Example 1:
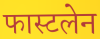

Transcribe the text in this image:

फास्टलेन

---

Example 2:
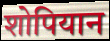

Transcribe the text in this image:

शोपियान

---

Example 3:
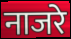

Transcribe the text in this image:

नाजरे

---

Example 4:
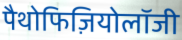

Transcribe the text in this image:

पैथोफिज़ियोलॉजी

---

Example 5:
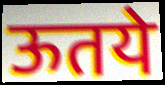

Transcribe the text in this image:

ऊतये